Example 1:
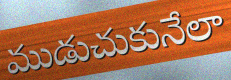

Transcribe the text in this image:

ముడుచుకునేలా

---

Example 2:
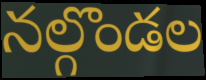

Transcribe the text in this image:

నల్గొండల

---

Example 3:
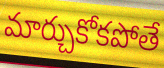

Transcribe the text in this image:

మార్చుకోకపోతే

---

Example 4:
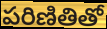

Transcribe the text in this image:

పరిణితితో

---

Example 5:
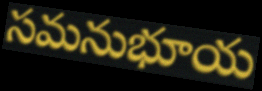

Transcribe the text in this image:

సమనుభూయ